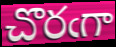
చొరఁగా